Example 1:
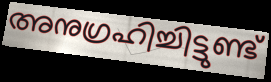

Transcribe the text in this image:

അനുഗ്രഹിച്ചിട്ടുണ്ട്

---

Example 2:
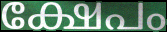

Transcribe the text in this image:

ക്ഷേപം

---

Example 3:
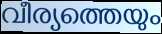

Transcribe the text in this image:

വീര്യത്തെയും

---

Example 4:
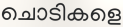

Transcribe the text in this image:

ചൊടികളെ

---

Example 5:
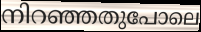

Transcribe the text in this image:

നിറഞ്ഞതുപോലെ